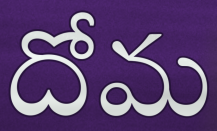
దోమ